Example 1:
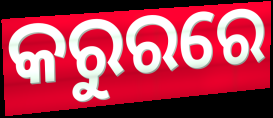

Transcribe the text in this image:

କରୁରରେ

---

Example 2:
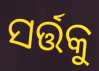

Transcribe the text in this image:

ସର୍ତ୍ତକୁ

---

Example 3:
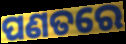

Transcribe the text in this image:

ପଣତରେ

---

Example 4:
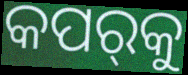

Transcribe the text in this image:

କପର୍‌କୁ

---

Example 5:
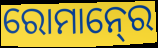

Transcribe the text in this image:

ରୋମାନ୍‍ରେ